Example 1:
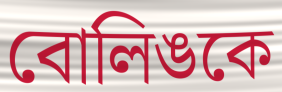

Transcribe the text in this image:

বোলিঙকে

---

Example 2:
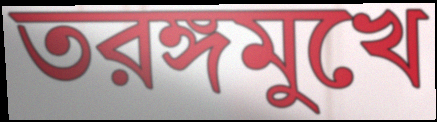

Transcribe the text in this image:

তরঙ্গমুখে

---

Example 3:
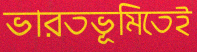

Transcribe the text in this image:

ভারতভূমিতেই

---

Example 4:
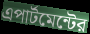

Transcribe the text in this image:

এপার্টমেন্টের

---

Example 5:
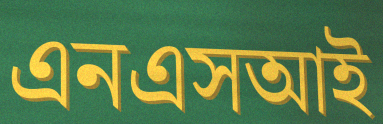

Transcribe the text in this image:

এনএসআই